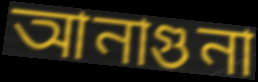
আনাগুনা